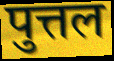
पुत्तल